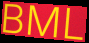
BML